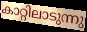
കാറ്റിലാടുന്നു